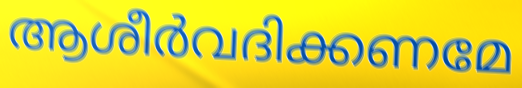
ആശീർവദിക്കണമേ